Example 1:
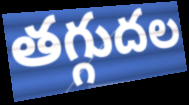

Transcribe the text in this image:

తగ్గుదల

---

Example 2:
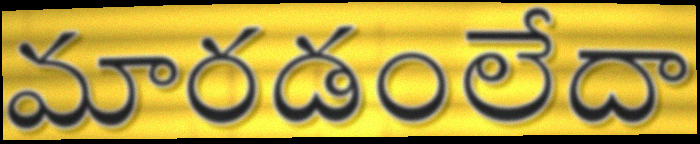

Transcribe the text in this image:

మారడంలేదా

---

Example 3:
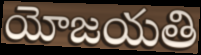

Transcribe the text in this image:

యోజయతి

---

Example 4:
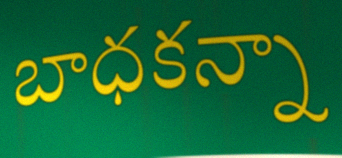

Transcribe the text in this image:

బాధకన్నా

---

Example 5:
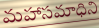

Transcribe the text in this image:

మహాసమాధిని